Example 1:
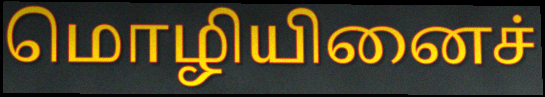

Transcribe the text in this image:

மொழியினைச்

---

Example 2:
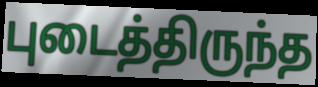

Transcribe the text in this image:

புடைத்திருந்த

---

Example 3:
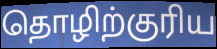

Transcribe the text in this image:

தொழிற்குரிய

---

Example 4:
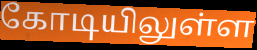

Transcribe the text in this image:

கோடியிலுள்ள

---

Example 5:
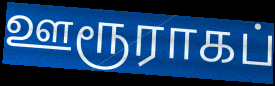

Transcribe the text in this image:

ஊரூராகப்